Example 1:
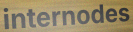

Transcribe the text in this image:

internodes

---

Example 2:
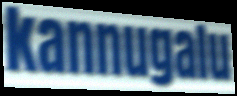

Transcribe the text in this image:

kannugalu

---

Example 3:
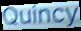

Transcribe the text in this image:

Quincy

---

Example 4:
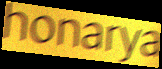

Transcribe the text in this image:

honarya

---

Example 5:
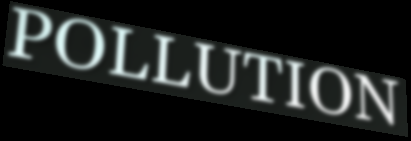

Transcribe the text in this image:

POLLUTION